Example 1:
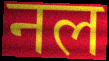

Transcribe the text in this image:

नल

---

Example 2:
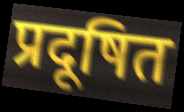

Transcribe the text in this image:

प्रदूषित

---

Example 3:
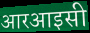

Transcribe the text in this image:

आरआइसी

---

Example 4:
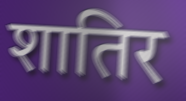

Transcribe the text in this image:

शातिर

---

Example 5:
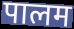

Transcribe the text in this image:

पालम